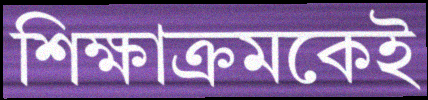
শিক্ষাক্রমকেই